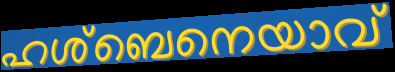
ഹശ്ബെനെയാവ്